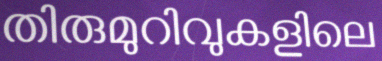
തിരുമുറിവുകളിലെ